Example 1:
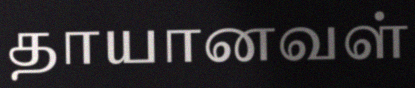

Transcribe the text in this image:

தாயானவள்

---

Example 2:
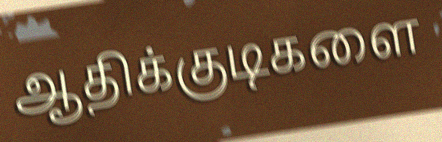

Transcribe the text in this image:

ஆதிக்குடிகளை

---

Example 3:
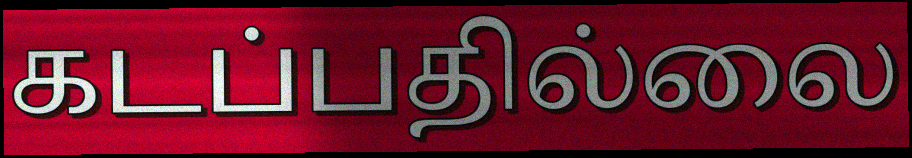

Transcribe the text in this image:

கடப்பதில்லை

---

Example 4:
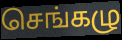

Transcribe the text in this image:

செங்கழு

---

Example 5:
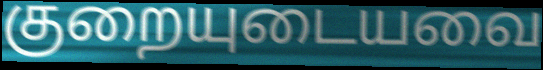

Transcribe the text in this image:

குறையுடையவை